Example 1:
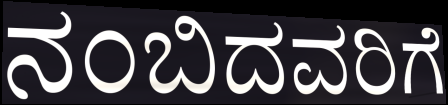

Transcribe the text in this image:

ನಂಬಿದವರಿಗೆ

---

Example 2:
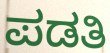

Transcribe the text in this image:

ಪಡತಿ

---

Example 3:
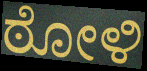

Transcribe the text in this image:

ಠೋಳಿ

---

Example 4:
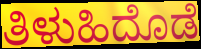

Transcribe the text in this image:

ತಿಳುಹಿದೊಡೆ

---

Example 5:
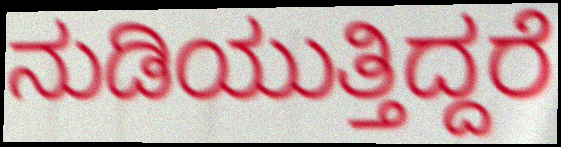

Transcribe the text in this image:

ನುಡಿಯುತ್ತಿದ್ದರೆ